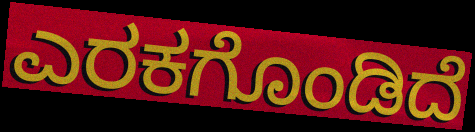
ಎರಕಗೊಂಡಿದೆ